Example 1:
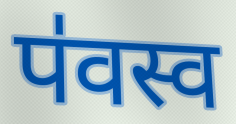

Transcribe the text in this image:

प॑वस्व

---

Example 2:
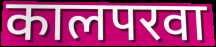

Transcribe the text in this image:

कालपरवा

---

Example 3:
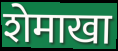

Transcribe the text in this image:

शेमाखा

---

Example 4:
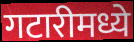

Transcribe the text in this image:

गटारीमध्ये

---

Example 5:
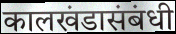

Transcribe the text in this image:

कालखंडासंबंधी